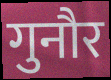
गुनौर